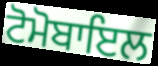
ਟੋਮੋਬਾਇਲ